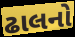
ઢાલનો